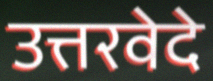
उत्तरवेदे